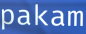
pakam